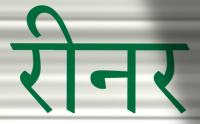
रीनर